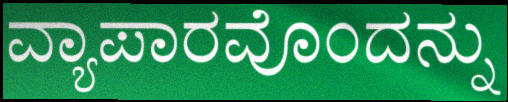
ವ್ಯಾಪಾರವೊಂದನ್ನು